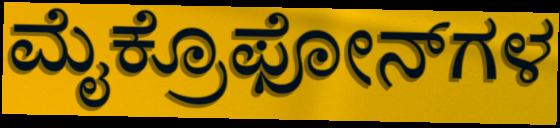
ಮೈಕ್ರೊಫೋನ್‌ಗಳ